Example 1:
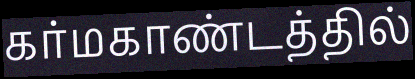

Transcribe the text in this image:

கர்மகாண்டத்தில்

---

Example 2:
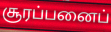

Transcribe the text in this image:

சூரப்பனைப்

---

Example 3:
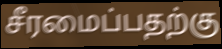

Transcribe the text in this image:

சீரமைப்பதற்கு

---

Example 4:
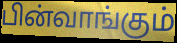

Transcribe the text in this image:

பின்வாங்கும்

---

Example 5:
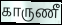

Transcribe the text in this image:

காருணீ